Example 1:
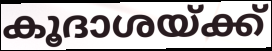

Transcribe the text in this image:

കൂദാശയ്ക്ക്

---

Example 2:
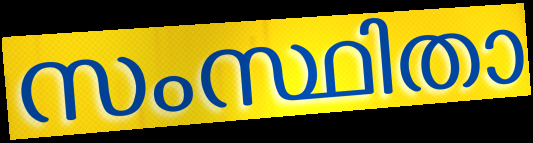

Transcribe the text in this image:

സംസ്ഥിതാ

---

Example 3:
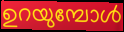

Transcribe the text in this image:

ഉറയുമ്പോൾ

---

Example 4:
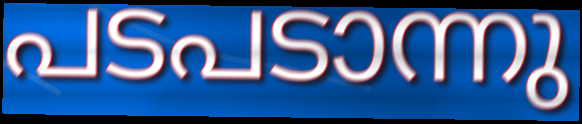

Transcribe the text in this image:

പടപടാന്നു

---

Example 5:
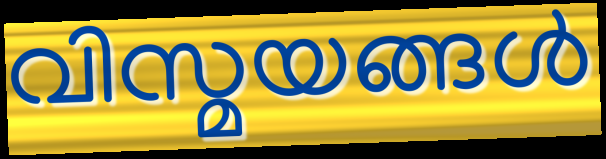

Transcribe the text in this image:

വിസ്മയങ്ങൾ